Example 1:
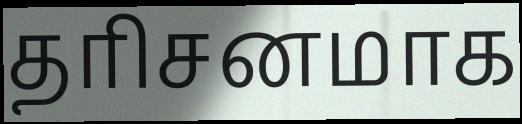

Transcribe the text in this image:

தரிசனமாக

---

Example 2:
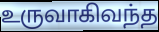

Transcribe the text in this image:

உருவாகிவந்த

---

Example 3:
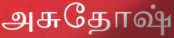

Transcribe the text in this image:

அசுதோஷ்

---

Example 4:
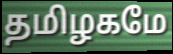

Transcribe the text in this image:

தமிழகமே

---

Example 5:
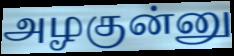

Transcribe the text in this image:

அழகுன்னு